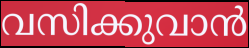
വസിക്കുവാൻ